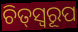
ଚିତ୍‌ସ୍ୱରୂପ